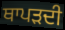
ਥਾਪੜਦੀ